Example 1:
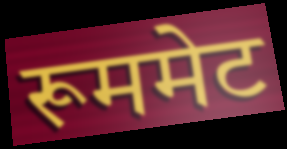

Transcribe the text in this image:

रूममेट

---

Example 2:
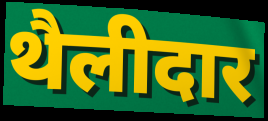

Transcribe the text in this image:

थैलीदार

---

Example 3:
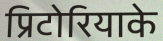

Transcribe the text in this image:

प्रिटोरियाके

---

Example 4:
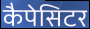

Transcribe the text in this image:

कैपेसिटर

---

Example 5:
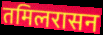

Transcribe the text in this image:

तमिलरासन